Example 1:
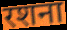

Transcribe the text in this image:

रशना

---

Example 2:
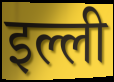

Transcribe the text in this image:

इल्ली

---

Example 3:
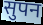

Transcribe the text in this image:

सुपन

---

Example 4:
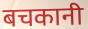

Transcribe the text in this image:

बचकानी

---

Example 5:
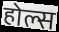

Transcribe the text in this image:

होल्स